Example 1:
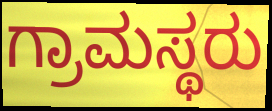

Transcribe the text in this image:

ಗ್ರಾಮಸ್ಥರು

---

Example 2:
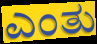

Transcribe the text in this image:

ಎಂತು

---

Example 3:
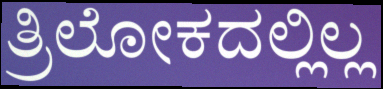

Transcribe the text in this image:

ತ್ರಿಲೋಕದಲ್ಲಿಲ್ಲ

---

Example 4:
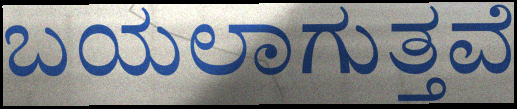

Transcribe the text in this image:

ಬಯಲಾಗುತ್ತವೆ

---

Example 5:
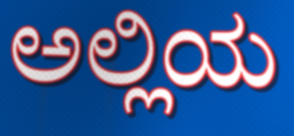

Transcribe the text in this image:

ಅಲ್ಲಿಯ